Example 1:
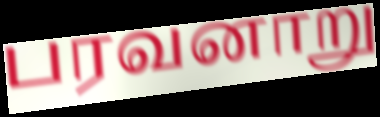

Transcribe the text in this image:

பரவனாறு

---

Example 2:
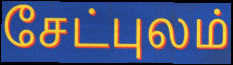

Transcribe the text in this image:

சேட்புலம்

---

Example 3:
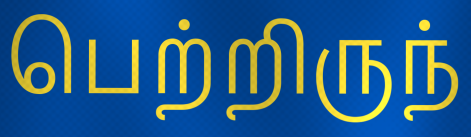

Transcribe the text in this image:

பெற்றிருந்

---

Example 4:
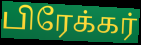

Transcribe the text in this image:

பிரேக்கர்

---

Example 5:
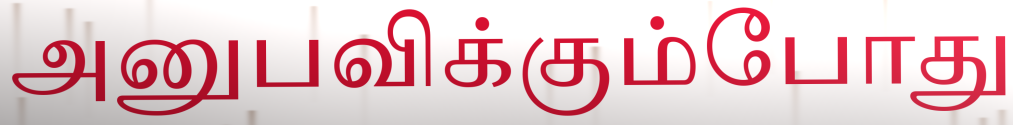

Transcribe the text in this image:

அனுபவிக்கும்போது